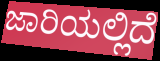
ಜಾರಿಯಲ್ಲಿದೆ